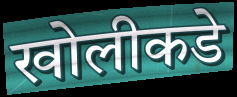
खोलीकडे